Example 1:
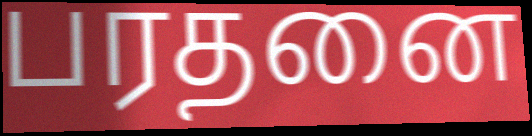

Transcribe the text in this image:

பரதனை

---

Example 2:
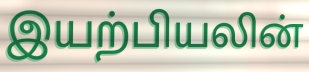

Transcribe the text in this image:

இயற்பியலின்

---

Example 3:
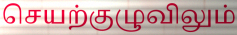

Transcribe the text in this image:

செயற்குழுவிலும்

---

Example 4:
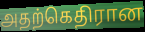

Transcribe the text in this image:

அதற்கெதிரான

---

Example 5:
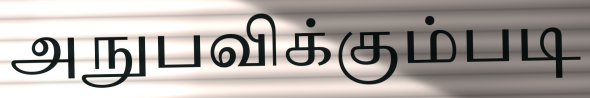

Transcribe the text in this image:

அநுபவிக்கும்படி